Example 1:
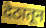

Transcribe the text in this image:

देठातून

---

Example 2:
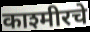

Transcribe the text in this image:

काश्मीरचे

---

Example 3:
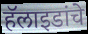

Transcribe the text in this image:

हॅलाइडांचे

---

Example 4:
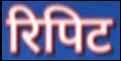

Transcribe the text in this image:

रिपिट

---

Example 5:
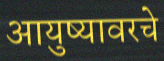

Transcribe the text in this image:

आयुष्यावरचे